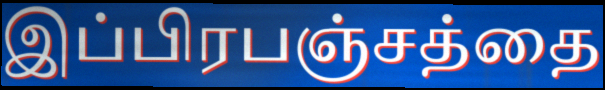
இப்பிரபஞ்சத்தை